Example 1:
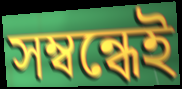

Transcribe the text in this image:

সম্বন্ধেই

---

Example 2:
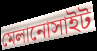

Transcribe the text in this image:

মেলানোসাইট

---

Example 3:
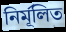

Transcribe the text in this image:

নির্মূলিত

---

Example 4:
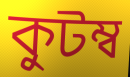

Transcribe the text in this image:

কুটম্ব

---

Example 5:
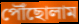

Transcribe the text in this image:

পৌঁছোলাম